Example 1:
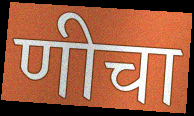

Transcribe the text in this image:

णीचा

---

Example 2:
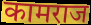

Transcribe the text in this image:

कामराज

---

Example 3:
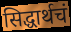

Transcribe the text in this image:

सिद्धार्थचं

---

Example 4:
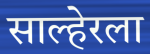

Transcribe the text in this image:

साल्हेरला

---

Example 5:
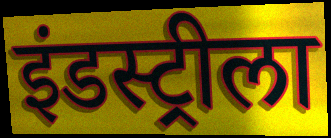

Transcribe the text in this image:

इंडस्ट्रीला